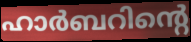
ഹാർബറിന്റെ